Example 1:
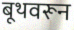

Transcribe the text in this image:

बूथवरून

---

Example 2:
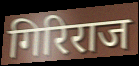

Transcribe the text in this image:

गिरिराज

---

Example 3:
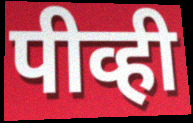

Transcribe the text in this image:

पीव्ही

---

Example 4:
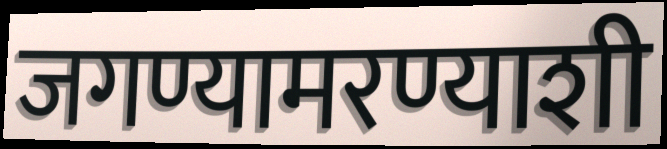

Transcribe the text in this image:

जगण्यामरण्याशी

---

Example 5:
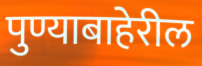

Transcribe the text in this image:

पुण्याबाहेरील